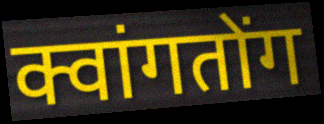
क्वांगतोंग